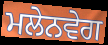
ਮਲੇਨਵੇਗ